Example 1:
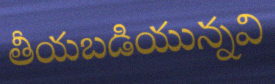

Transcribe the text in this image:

తీయబడియున్నవి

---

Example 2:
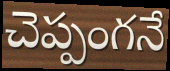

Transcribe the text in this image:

చెప్పంగనే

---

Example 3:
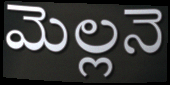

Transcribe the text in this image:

మెల్లనె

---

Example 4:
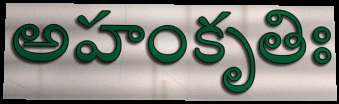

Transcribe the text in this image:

అహంకృతిః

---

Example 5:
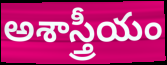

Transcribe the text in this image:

అశాస్త్రీయం